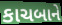
કાચબાને